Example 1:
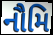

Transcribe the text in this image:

નૌમિ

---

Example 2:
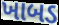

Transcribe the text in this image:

ખાબડ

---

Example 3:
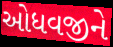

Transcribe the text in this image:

ઓધવજીને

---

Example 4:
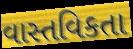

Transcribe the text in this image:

વાસ્તવિકતા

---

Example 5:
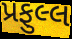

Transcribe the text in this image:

પ્રફુલ્લ